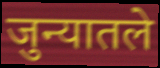
जुन्यातले